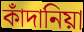
কাঁদানিয়া